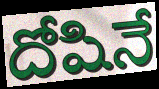
దోషినే